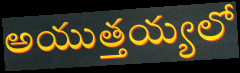
అయుత్తయ్యలో